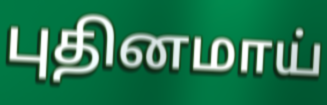
புதினமாய்